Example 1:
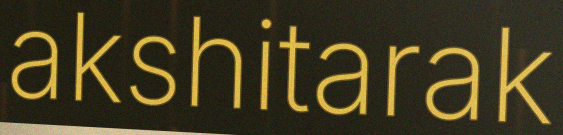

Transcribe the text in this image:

akshitarak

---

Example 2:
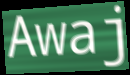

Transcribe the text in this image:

Awaj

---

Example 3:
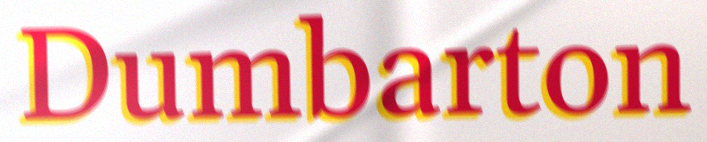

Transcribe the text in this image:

Dumbarton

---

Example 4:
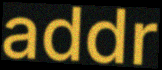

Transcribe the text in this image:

addr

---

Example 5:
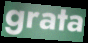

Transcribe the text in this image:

grata